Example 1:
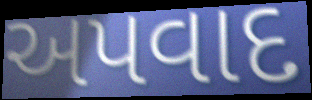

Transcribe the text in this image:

અપવાદ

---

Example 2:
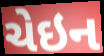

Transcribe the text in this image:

ચેઇન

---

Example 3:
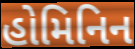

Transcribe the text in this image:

હોમિનિન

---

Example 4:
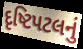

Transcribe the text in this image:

દૃષ્ટિપટલનું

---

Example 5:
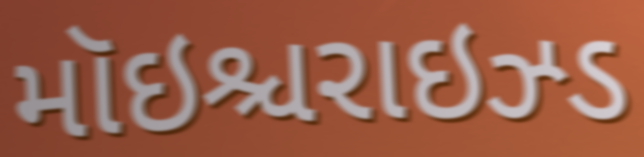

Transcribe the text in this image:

મૉઇશ્ચરાઇઝ્ડ